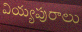
వియ్యపురాలు